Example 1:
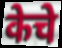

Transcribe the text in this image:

केचे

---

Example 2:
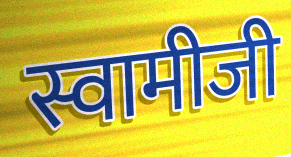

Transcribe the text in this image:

स्वामीजी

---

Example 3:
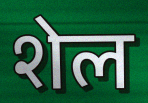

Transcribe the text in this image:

शेल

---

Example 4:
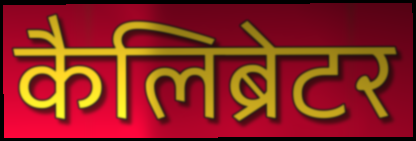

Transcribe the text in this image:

कैलिब्रेटर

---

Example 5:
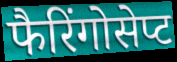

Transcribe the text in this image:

फैरिंगोसेप्ट